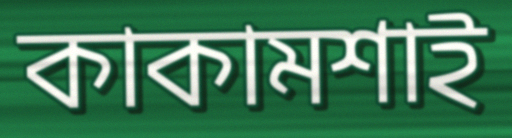
কাকামশাই